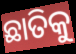
ଛାତିକୁ